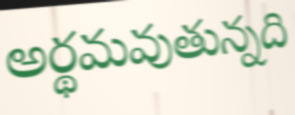
అర్థమవుతున్నది